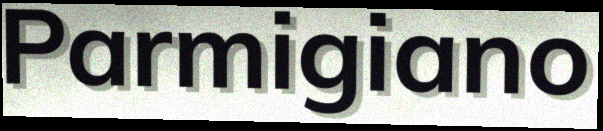
Parmigiano